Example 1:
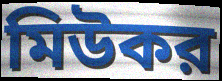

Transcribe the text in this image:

মিউকর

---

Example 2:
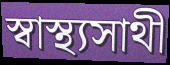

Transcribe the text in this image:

স্বাস্থ্যসাথী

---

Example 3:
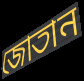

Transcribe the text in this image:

জোতান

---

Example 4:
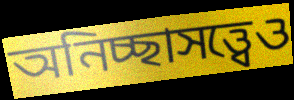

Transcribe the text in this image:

অনিচ্ছাসত্ত্বেও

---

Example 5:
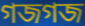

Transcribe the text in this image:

গজগজ